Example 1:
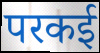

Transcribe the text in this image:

परकई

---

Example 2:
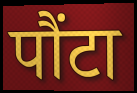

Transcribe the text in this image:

पौंटा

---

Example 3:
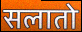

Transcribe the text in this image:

सलातो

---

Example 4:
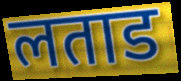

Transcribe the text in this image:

लताड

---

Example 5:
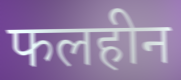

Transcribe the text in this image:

फलहीन